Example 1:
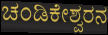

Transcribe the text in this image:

ಚಂಡಿಕೇಶ್ವರನ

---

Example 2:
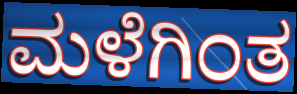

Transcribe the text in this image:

ಮಳೆಗಿಂತ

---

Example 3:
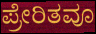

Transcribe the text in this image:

ಪ್ರೇರಿತವೂ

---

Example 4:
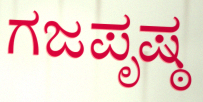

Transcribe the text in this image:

ಗಜಪೃಷ್ಠ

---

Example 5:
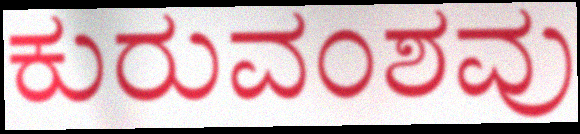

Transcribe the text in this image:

ಕುರುವಂಶವು